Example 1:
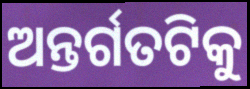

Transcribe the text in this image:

ଅନ୍ତର୍ଗତଟିକୁ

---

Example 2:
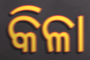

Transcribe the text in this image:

କିଳା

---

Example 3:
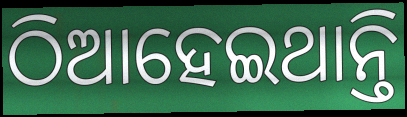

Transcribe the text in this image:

ଠିଆହେଇଥାନ୍ତି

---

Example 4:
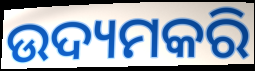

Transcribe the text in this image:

ଉଦ୍ୟମକରି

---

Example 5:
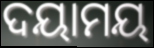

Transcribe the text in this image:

ଦୟାମୟ